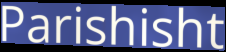
Parishisht